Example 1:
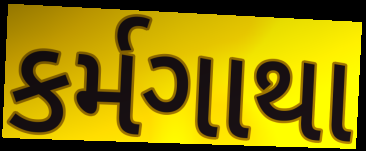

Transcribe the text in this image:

કર્મગાથા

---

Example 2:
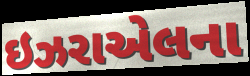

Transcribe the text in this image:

ઇઝરાએલના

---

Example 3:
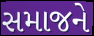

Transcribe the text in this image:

સમાજને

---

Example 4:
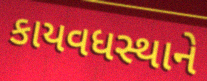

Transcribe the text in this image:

કાયવધસ્થાને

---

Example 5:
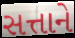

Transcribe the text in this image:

સત્તાને